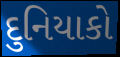
દુનિયાકો